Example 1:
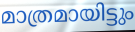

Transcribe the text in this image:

മാത്രമായിട്ടും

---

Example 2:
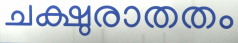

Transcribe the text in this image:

ചക്ഷുരാതതം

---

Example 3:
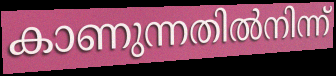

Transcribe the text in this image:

കാണുന്നതിൽനിന്ന്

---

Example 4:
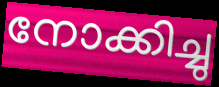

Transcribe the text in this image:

നോക്കിച്ചു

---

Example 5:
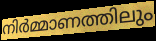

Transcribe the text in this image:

നിർമ്മാണത്തിലും